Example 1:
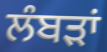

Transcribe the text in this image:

ਲੰਬੜਾਂ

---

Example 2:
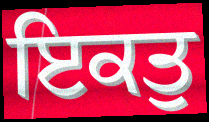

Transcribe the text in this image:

ਇਕਤੁ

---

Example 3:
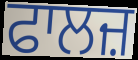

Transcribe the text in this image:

ਫਾਲਜ਼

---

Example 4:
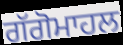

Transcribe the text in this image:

ਗੱਗੋਮਾਹਲ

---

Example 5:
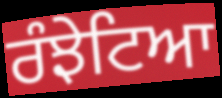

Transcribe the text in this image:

ਰੰਝੇਟਿਆ